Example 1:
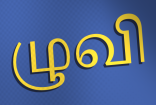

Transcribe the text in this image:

ழுவி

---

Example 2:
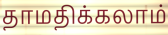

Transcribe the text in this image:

தாமதிக்கலாம்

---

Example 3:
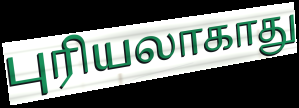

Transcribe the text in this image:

புரியலாகாது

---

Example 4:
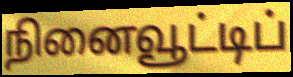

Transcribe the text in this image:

நினைவூட்டிப்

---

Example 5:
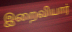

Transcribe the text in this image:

இறைவியார்